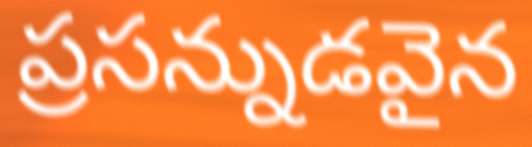
ప్రసన్నుడవైన